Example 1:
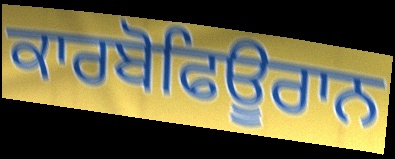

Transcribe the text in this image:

ਕਾਰਬੋਫਿਊਰਾਨ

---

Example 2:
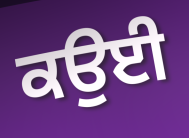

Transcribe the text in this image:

ਕਉਈ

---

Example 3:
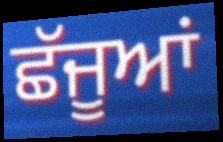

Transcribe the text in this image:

ਛੱਜੂਆਂ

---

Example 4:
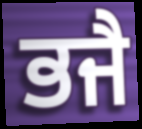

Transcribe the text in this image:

ਭਜੈ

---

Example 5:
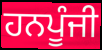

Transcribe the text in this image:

ਹਨਪੂੰਜੀ